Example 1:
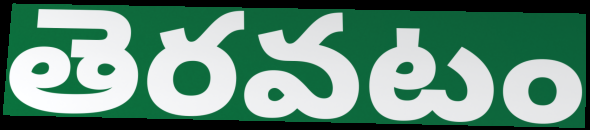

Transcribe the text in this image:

తెరవటం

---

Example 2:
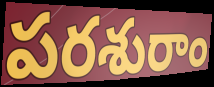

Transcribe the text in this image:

పరశురాం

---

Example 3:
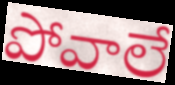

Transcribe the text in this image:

పోవాలే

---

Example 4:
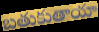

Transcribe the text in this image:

బతుకుతాయా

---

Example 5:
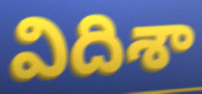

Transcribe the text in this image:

విదిశా